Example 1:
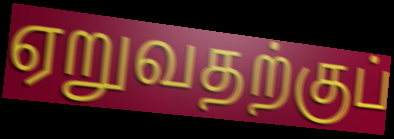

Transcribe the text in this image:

ஏறுவதற்குப்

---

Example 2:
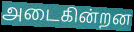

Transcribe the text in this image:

அடைகின்றன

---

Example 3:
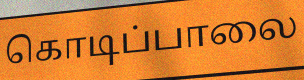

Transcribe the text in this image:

கொடிப்பாலை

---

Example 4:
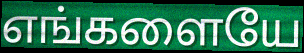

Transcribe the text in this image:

எங்களையே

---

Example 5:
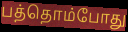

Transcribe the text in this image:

பத்தொம்போது